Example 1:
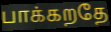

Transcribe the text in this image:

பாக்கறதே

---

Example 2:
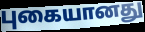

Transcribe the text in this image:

புகையானது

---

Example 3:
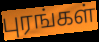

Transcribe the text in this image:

புரங்கள்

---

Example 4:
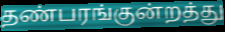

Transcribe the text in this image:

தண்பரங்குன்றத்து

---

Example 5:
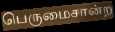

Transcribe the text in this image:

பெருமைசான்ற